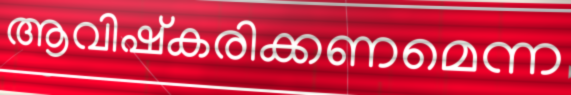
ആവിഷ്കരിക്കണമെന്ന